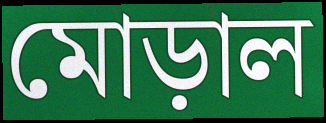
মোড়াল